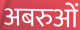
अबरुओं